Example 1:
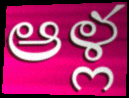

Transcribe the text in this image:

ఆళ్ల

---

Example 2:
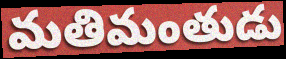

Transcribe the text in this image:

మతిమంతుడు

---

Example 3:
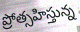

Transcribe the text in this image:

ప్రోత్సహిస్తున్న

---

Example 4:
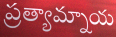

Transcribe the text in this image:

ప్రత్యామ్నాయ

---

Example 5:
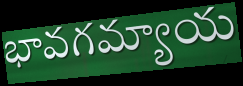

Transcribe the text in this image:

భావగమ్యాయ